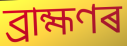
ব্ৰাহ্মণৰ